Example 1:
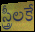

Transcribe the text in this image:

స్త్రీలకే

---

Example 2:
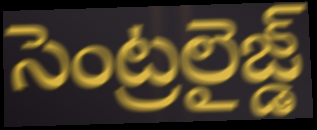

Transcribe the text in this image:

సెంట్రలైజ్డ్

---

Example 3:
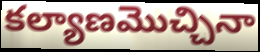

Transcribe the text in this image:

కల్యాణమొచ్చినా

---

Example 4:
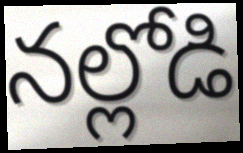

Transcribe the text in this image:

నల్లోడి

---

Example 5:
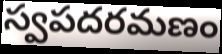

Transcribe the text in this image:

స్వపదరమణం